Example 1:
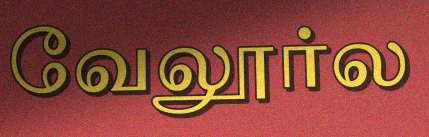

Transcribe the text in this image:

வேலூர்ல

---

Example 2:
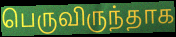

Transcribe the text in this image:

பெருவிருந்தாக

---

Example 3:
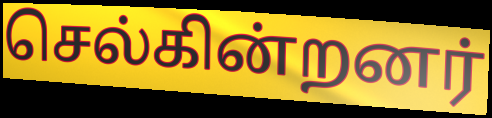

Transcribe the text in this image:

செல்கின்றனர்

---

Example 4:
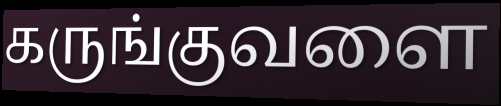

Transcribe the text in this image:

கருங்குவளை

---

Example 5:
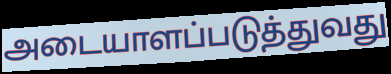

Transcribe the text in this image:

அடையாளப்படுத்துவது